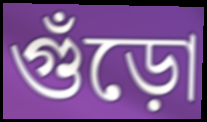
গুঁড়ো